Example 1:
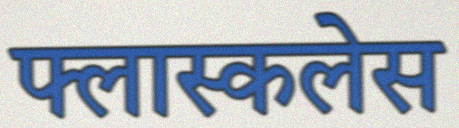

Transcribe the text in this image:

फ्लास्कलेस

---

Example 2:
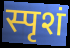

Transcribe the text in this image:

स्पृशं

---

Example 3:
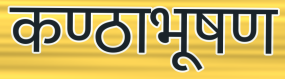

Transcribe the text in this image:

कण्ठाभूषण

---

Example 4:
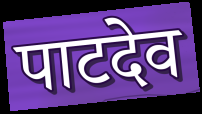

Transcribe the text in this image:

पाटदेव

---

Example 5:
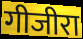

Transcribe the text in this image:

गीजीरा